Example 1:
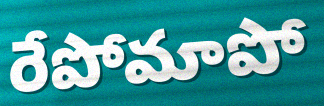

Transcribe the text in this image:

రేపోమాపో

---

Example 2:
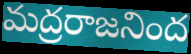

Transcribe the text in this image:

మద్రరాజనింద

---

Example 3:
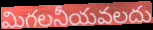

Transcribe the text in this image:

మిగలనీయవలదు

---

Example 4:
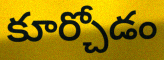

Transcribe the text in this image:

కూర్చోడం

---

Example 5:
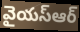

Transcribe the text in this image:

వైయస్ఆర్